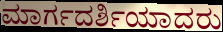
ಮಾರ್ಗದರ್ಶಿಯಾದರು